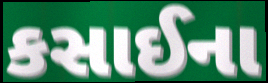
કસાઈના